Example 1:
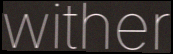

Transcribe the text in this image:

wither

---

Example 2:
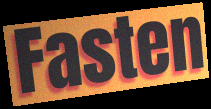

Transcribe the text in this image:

Fasten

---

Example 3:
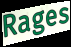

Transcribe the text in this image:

Rages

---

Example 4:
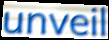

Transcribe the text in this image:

unveil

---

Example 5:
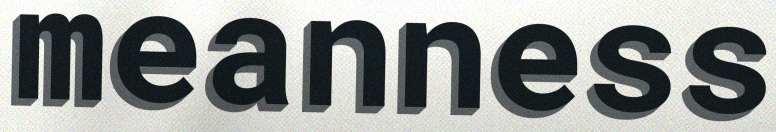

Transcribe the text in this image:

meanness